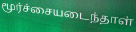
மூர்ச்சையடைந்தாள்